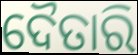
ଦୈତାରି